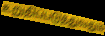
உறுதிப்படுத்துவதும்